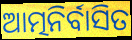
ଆତ୍ମନିର୍ବାସିତ